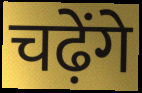
चढ़ेंगे